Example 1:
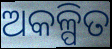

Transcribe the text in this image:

ଅକଳ୍ପିତ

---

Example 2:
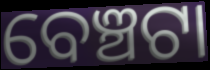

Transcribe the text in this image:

ବେଞ୍ଚଟା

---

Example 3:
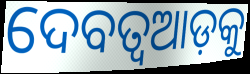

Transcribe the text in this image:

ଦେବତ୍ୱଆଡ଼କୁ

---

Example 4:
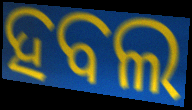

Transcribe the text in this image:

ହବଲ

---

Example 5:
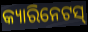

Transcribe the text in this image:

କ୍ୟାରିନେଟସ୍